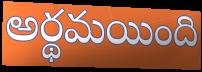
అర్థమయింది